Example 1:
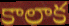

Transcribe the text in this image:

కాలాక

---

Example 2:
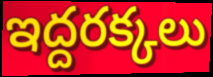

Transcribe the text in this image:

ఇద్దరక్కలు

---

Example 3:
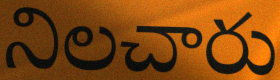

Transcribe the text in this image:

నిలచారు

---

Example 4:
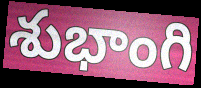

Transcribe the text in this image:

శుభాంగి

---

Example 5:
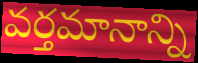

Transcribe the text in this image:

వర్తమానాన్ని